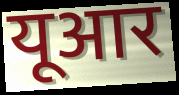
यूआर